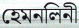
হেমনলিনী